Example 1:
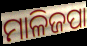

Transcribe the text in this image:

ମାଳିଜପା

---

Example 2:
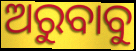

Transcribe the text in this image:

ଅରୁବାବୁ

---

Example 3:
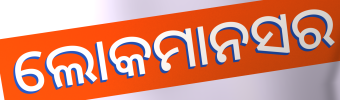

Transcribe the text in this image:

ଲୋକମାନସର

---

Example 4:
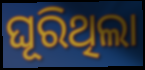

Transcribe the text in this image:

ଘୂରିଥିଲା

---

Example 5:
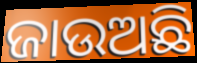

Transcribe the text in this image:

ଜାଉଅଛି